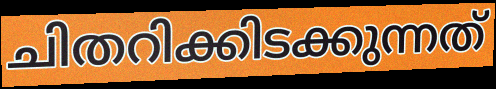
ചിതറിക്കിടക്കുന്നത്